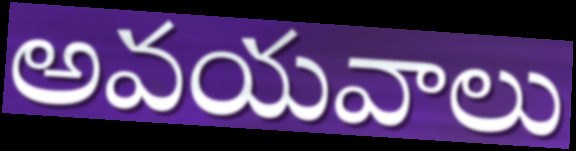
అవయవాలు